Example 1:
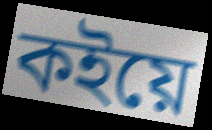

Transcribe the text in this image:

কইয়ে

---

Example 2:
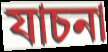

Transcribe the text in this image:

যাচনা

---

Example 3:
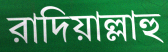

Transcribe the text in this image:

রাদিয়াল্লাহু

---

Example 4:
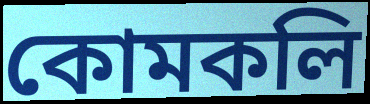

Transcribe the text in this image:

কোমকলি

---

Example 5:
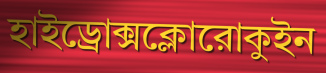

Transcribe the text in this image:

হাইড্রোক্সক্লোরোকুইন